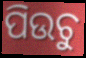
ପିଉଚୁ